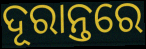
ଦୂରାନ୍ତରେ